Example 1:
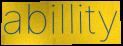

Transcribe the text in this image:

abillity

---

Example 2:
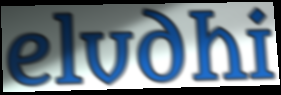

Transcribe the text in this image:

eludhi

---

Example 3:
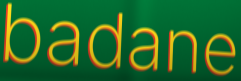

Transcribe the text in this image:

badane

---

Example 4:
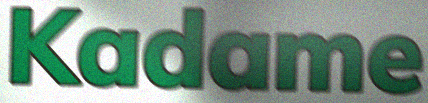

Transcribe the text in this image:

Kadame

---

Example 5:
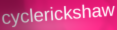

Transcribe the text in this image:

cyclerickshaw